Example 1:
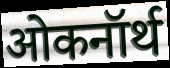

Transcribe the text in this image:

ओकनॉर्थ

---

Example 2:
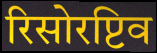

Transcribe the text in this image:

रिसोरप्टिव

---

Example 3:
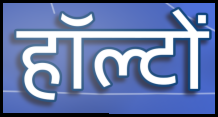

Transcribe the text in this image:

हॉल्टों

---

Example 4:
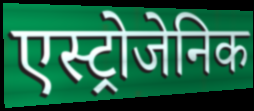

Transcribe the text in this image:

एस्ट्रोजेनिक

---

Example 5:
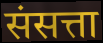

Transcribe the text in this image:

संसत्ता